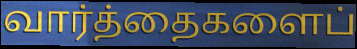
வார்த்தைகளைப்